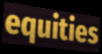
equities